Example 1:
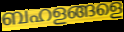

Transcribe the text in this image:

ബഹളങ്ങളെ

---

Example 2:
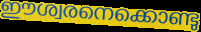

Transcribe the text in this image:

ഈശ്വരനെക്കൊണ്ടു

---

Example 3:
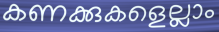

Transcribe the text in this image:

കണക്കുകളെല്ലാം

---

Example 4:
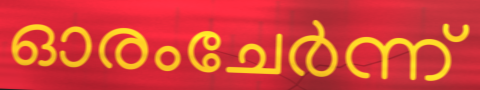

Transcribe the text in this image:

ഓരംചേർന്ന്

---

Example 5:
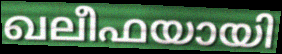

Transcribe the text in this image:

ഖലീഫയായി